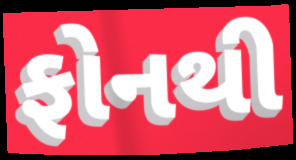
ફોનથી